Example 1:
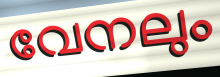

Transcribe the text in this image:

വേനലും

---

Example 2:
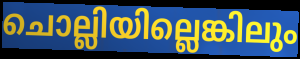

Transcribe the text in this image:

ചൊല്ലിയില്ലെങ്കിലും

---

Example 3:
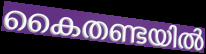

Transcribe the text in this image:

കൈതണ്ടയിൽ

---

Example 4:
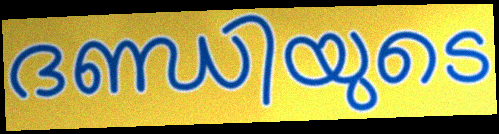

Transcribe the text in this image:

ദണ്ഡിയുടെ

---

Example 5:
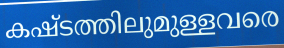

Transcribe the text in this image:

കഷ്ടത്തിലുമുള്ളവരെ